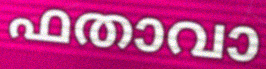
ഫതാവാ